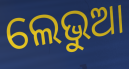
ଲେଭୁଆ